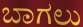
ಬಾಗಲು